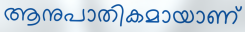
ആനുപാതികമായാണ്